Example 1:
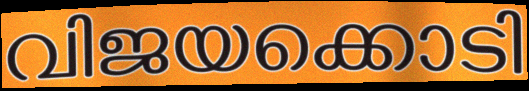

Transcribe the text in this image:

വിജയക്കൊടി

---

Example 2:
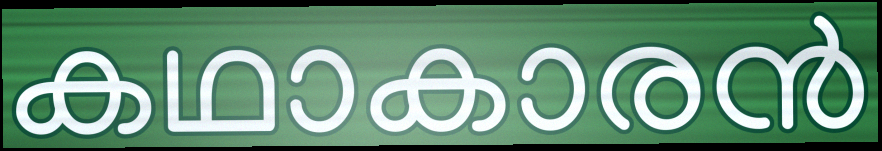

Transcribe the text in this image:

കഥാകാരൻ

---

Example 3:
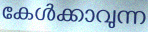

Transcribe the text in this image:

കേൾക്കാവുന്ന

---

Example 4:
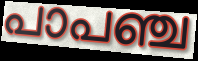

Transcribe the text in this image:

പാപഞ്ച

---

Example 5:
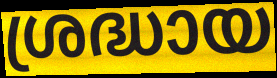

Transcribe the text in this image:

ശ്രദ്ധായ